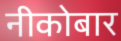
नीकोबार